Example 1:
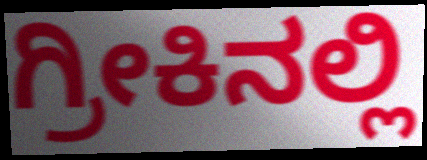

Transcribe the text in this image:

ಗ್ರೀಕಿನಲ್ಲಿ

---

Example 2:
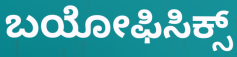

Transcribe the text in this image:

ಬಯೋಫಿಸಿಕ್ಸ್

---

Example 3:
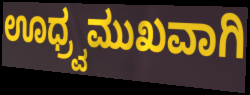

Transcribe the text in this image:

ಊಧ್ರ್ವಮುಖವಾಗಿ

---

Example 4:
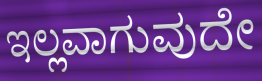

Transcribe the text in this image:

ಇಲ್ಲವಾಗುವುದೇ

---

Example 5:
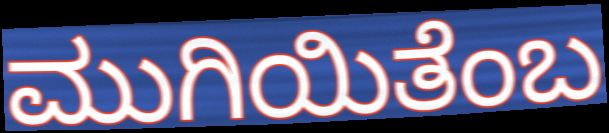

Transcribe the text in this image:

ಮುಗಿಯಿತೆಂಬ